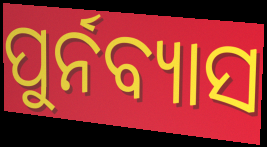
ପୁର୍ନବ୍ୟାସ